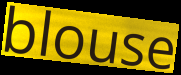
blouse